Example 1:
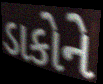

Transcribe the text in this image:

ડાકોને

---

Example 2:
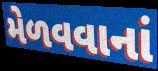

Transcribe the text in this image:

મેળવવાનાં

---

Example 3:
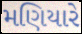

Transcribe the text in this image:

મણિયારે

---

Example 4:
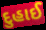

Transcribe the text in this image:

દુહાઈ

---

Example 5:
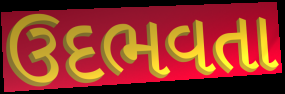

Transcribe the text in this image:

ઉદભવતા